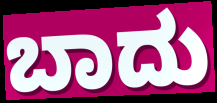
ಬಾದು